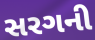
સરગની